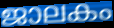
ജാലകം